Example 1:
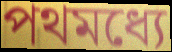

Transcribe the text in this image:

পথমধ্যে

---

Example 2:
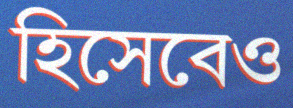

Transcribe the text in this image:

হিসেবেও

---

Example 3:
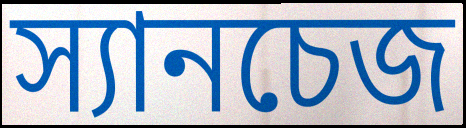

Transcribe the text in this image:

স্যানচেজ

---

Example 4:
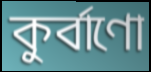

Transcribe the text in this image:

কুর্বাণো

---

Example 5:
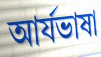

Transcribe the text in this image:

আর্যভাষা